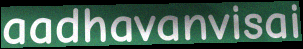
aadhavanvisai